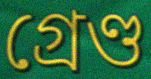
গ্ৰেণ্ড